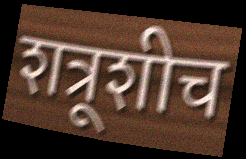
शत्रूशीच